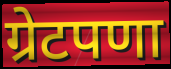
ग्रेटपणा